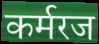
कर्मरज